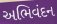
અભિવંદન